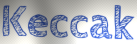
Keccak